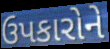
ઉપકારોને